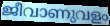
ജീവാണുവളം